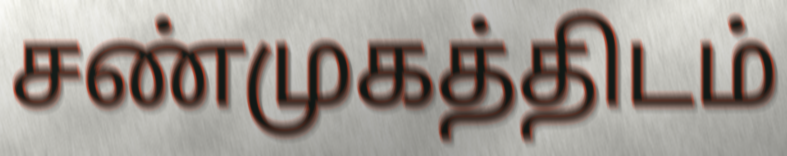
சண்முகத்திடம்